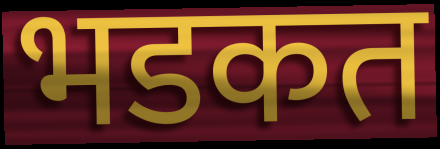
भडकत